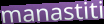
manastiti